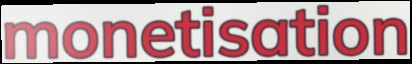
monetisation